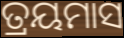
ତ୍ରୟମାସ